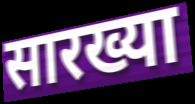
सारख्या